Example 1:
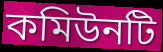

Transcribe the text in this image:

কমিউনটি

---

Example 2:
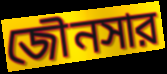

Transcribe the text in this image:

জৌনসার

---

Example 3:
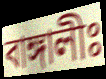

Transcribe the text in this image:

বাঙ্গালীঃ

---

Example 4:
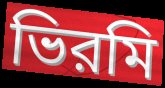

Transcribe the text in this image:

ভিরমি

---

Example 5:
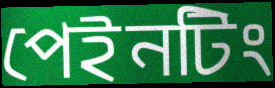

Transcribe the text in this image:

পেইনটিং